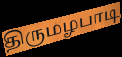
திருமழபாடி